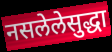
नसलेलेसुद्धा